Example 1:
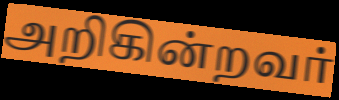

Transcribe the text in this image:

அறிகின்றவர்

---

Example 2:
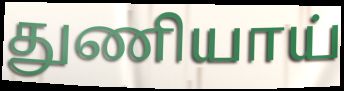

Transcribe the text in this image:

துணியாய்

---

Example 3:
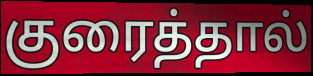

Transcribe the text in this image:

குரைத்தால்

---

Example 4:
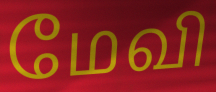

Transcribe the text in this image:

மேவி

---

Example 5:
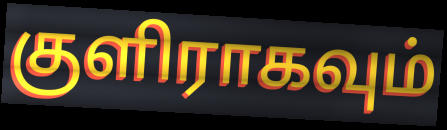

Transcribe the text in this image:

குளிராகவும்